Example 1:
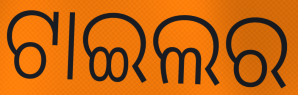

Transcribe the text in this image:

ଟାଇଲର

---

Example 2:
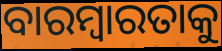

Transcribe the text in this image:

ବାରମ୍ବାରତାକୁ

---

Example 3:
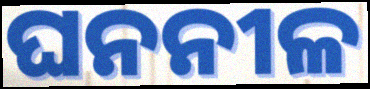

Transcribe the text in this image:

ଘନନୀଳ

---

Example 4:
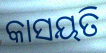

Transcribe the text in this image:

କାସୟତି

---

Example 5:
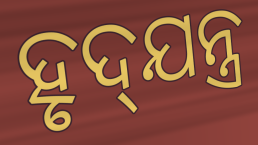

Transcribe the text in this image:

ହୃଦ୍‌ଯନ୍ତ୍ର